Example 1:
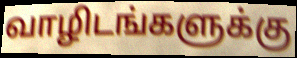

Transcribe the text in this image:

வாழிடங்களுக்கு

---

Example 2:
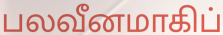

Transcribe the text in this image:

பலவீனமாகிப்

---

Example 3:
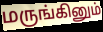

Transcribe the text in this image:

மருங்கினும்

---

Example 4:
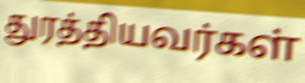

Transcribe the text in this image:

துரத்தியவர்கள்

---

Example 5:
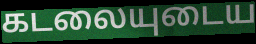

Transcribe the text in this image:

கடலையுடைய